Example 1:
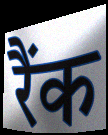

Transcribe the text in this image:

रैंक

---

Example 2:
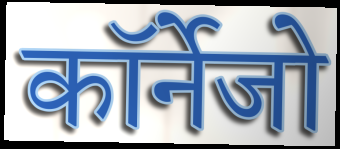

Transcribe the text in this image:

कॉर्नेजो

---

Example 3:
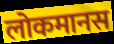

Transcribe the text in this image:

लोकमानस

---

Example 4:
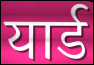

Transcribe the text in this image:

यार्ड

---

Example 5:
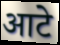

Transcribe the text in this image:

आटे